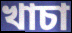
খাচা